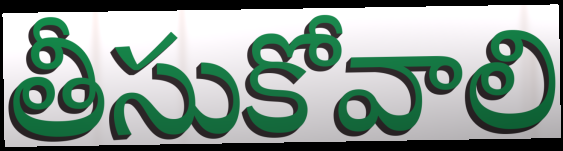
తీసుకోవాలి